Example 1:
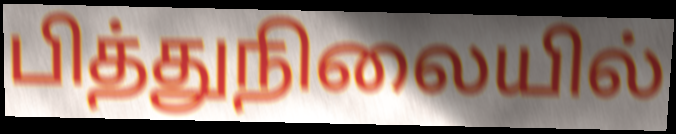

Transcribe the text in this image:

பித்துநிலையில்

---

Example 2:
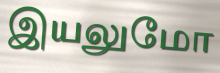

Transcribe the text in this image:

இயலுமோ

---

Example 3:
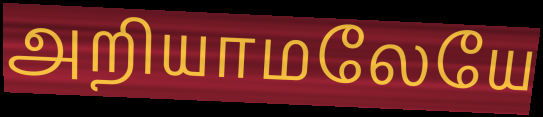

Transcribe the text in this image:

அறியாமலேயே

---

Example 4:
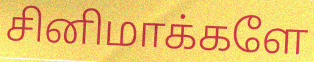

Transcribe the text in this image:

சினிமாக்களே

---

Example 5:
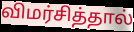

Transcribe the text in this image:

விமர்சித்தால்